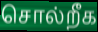
சொல்றீக